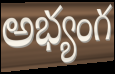
అభ్యంగ